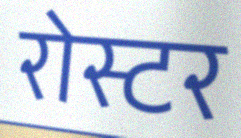
रोस्टर